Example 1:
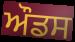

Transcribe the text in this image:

ਔਡਸ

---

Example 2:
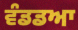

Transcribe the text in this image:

ਵੰਡਡਆ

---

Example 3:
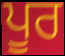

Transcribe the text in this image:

ਪੂਰ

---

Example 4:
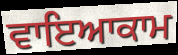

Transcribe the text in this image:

ਵਾਇਆਕਾਮ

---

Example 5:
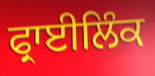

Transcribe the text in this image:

ਫ੍ਰਾਈਲਿੰਕ